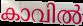
കാവിൽ